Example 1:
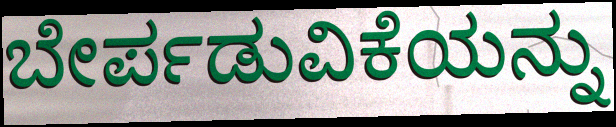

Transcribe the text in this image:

ಬೇರ್ಪಡುವಿಕೆಯನ್ನು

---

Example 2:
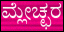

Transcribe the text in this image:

ಮ್ಲೇಚ್ಛರ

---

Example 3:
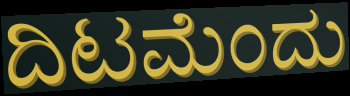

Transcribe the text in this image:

ದಿಟಮೆಂದು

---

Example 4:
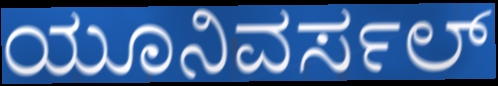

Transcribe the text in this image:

ಯೂನಿವರ್ಸಲ್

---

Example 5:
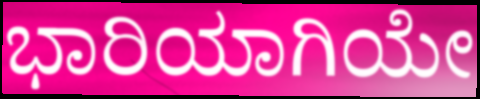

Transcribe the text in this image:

ಭಾರಿಯಾಗಿಯೇ